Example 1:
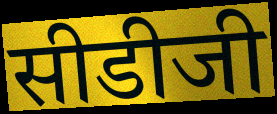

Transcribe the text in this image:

सीडीजी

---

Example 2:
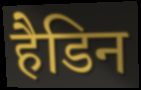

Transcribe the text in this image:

हैडिन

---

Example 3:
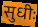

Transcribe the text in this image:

सुधीः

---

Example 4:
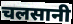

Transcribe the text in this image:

चलसानी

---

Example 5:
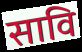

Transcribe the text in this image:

सावि